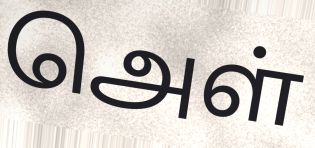
அெள்